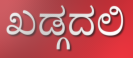
ಖಡ್ಗದಲಿ